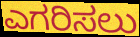
ಎಗರಿಸಲು